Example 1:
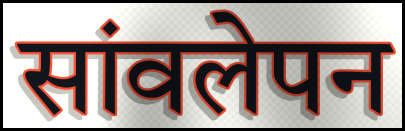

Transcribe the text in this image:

सांवलेपन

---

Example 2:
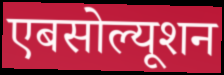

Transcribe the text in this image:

एबसोल्यूशन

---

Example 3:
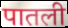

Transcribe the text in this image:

पातली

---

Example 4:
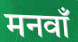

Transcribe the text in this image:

मनवाँ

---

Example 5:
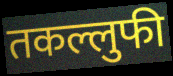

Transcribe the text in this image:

तकल्लुफी